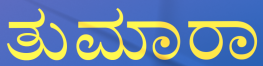
ತುಮಾರಾ